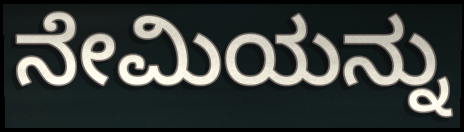
ನೇಮಿಯನ್ನು